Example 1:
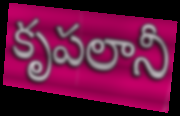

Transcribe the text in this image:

కృపలానీ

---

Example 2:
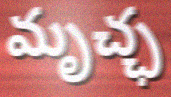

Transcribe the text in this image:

మృచ్ఛ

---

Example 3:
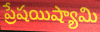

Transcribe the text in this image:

ప్రేషయిష్యామి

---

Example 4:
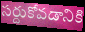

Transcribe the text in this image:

సర్దుకోవడానికి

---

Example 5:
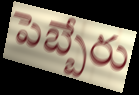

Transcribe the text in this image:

పెబ్బేరు